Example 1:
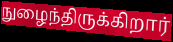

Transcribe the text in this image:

நுழைந்திருக்கிறார்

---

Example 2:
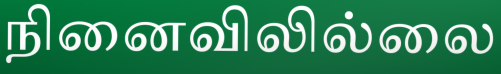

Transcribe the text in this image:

நினைவிலில்லை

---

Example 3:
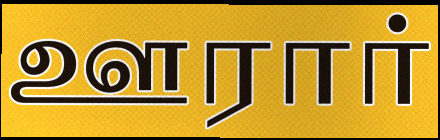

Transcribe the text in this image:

ஊரார்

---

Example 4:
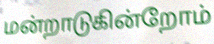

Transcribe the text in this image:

மன்றாடுகின்றோம்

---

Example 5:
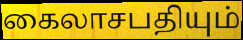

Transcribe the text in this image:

கைலாசபதியும்